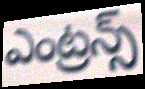
ఎంట్రన్స్